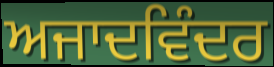
ਅਜਾਦਵਿੰਦਰ